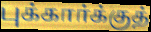
புக்கார்க்குத்